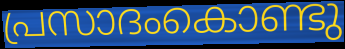
പ്രസാദംകൊണ്ടു